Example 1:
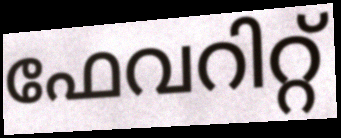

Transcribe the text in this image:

ഫേവറിറ്റ്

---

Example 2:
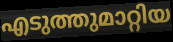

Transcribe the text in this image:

എടുത്തുമാറ്റിയ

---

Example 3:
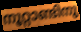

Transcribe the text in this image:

നൂറ്റാണ്ടിനു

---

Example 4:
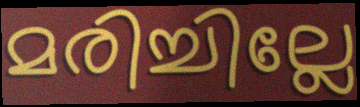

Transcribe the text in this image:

മരിച്ചില്ലേ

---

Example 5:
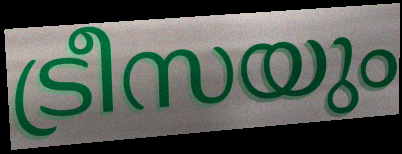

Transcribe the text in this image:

ട്രീസയും